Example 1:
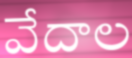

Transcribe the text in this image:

వేదాల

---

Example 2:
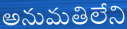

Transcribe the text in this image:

అనుమతిలేని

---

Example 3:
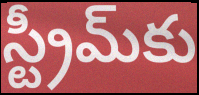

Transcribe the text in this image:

స్ట్రీమ్‌కు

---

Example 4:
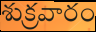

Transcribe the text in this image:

శుక్రవారం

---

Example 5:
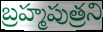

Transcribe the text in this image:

బ్రహ్మపుత్రని